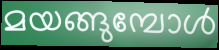
മയങ്ങുമ്പോൾ